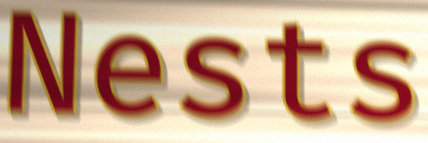
Nests